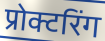
प्रोक्टरिंग